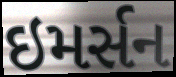
ઇમર્સન